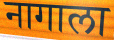
नागाला